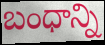
బంధాన్ని